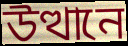
উত্থানে